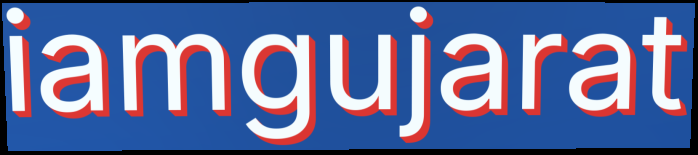
iamgujarat